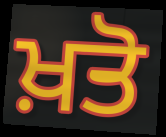
ਖ਼ਤੋ